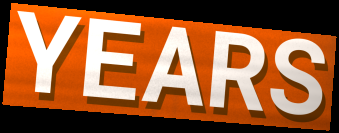
YEARS